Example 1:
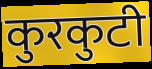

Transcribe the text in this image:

कुरकुटी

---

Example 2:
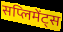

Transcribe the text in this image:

सप्लिमेंट्स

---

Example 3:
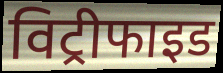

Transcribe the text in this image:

विट्रीफाइड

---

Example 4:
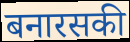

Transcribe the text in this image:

बनारसकी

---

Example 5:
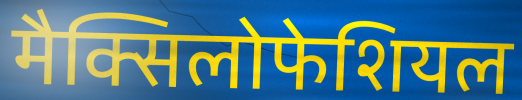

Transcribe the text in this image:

मैक्सिलोफेशियल